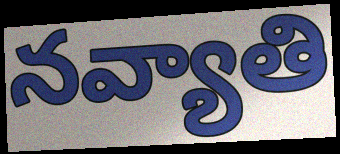
నవ్యాతి